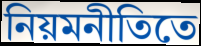
নিয়মনীতিতে